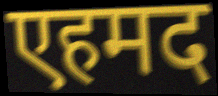
एहमद